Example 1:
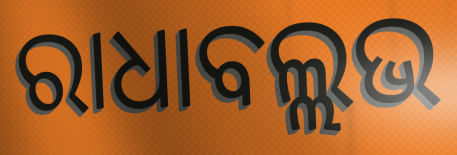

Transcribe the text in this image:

ରାଧାବଲ୍ଲଭ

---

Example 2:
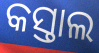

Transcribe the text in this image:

କସ୍ତାଲ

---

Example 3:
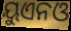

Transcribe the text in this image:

ୟୁଏନଓ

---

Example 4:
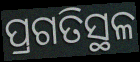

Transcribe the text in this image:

ପ୍ରଗତିସ୍ଥଳ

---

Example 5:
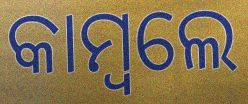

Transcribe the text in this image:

କାମ୍ବଲେ